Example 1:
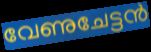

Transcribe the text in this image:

വേണുചേട്ടൻ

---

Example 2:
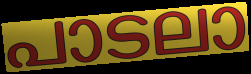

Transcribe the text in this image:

പാടലാ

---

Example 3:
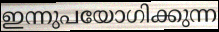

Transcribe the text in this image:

ഇന്നുപയോഗിക്കുന്ന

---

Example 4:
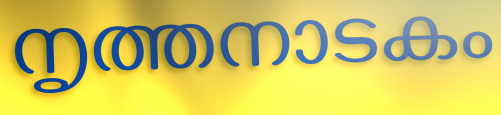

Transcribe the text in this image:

നൃത്തനാടകം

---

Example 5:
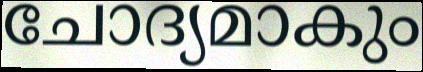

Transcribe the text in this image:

ചോദ്യമാകും